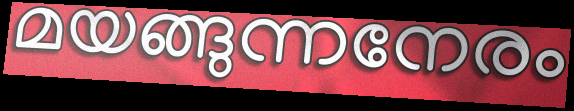
മയങ്ങുന്നനേരം